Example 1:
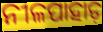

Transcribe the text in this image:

ନୀଳପାହାଡ଼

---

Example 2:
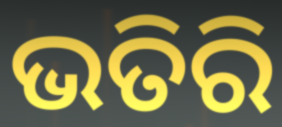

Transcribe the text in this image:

ଭତିରି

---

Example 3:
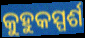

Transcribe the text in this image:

କୁହୁକସ୍ପର୍ଶ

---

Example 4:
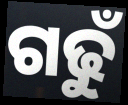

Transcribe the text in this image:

ଗଢୁଁ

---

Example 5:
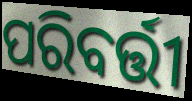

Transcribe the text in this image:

ପରିବର୍ତ୍ତୀ